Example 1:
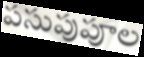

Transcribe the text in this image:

పసుపుపూల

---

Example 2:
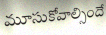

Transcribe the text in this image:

మూసుకోవాల్సిందే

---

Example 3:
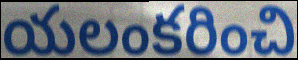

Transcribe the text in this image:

యలంకరించి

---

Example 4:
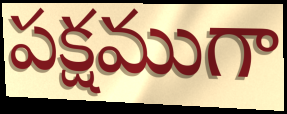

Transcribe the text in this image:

పక్షముగా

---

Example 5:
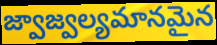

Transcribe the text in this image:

జ్వాజ్వల్యమానమైన